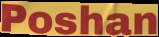
Poshan